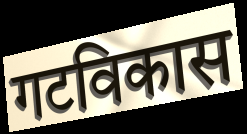
गटविकास